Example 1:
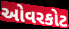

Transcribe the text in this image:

ઓવરકોટ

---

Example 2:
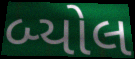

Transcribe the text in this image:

બ્યોલ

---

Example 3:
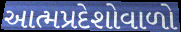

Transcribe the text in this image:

આત્મપ્રદેશોવાળો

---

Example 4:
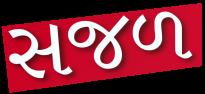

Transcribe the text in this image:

સજળ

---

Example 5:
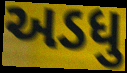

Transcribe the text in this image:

અડધુ